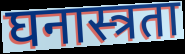
घनास्त्रता